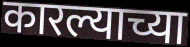
कारल्याच्या